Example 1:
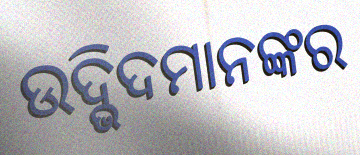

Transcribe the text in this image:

ଉଦ୍ଭିଦମାନଙ୍କର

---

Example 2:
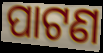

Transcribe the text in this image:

ପାଟଣ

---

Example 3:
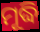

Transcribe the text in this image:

ମୂଦ୍ଧି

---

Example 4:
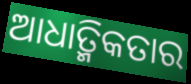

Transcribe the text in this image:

ଆଧାତ୍ମିକତାର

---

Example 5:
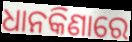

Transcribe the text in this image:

ଧାନକିଣାରେ